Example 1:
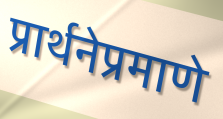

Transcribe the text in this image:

प्रार्थनेप्रमाणे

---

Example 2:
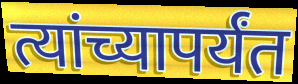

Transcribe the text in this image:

त्यांच्यापर्यंत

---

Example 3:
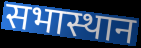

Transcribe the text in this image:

सभास्थान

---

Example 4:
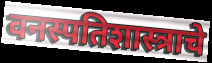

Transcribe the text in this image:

वनस्पतिशास्त्राचे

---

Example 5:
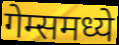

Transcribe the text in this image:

गेम्समध्ये